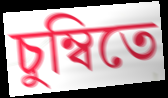
চুম্বিতে